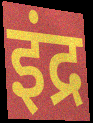
इंद्र